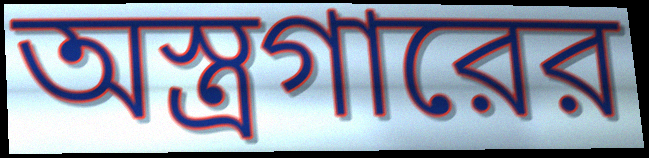
অস্ত্রগারের